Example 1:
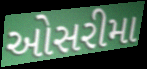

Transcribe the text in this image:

ઓસરીમા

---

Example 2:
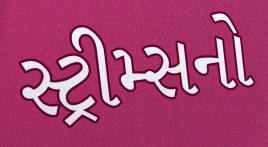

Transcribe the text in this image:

સ્ટ્રીમ્સનો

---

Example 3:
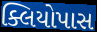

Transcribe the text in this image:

ક્લિયોપાસ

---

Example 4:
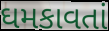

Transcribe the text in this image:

ઘમકાવતાં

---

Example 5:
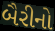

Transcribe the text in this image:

બૈરીનો